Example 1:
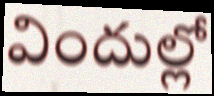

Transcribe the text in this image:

విందుల్లో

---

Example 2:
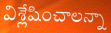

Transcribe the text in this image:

విశ్లేషించాలన్నా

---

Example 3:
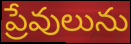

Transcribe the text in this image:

ప్రేవులును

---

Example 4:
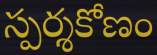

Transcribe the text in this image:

స్పర్శకోణం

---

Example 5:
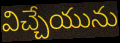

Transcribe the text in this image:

విచ్చేయును